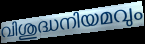
വിശുദ്ധനിയമവും